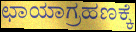
ಛಾಯಾಗ್ರಹಣಕ್ಕೆ